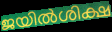
ജയിൽശിക്ഷ